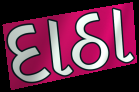
દાઠા